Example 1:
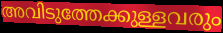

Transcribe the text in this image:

അവിടുത്തേക്കുള്ളവരും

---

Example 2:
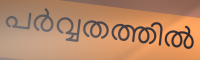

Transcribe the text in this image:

പർവ്വതത്തിൽ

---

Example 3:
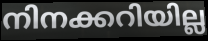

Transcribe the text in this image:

നിനക്കറിയില്ല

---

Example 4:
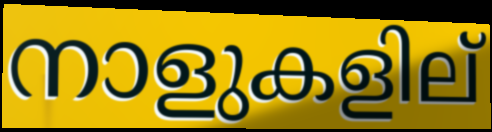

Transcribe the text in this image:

നാളുകളില്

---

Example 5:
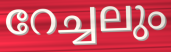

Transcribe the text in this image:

റേച്ചലും